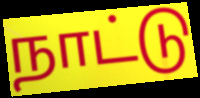
நாட்டு